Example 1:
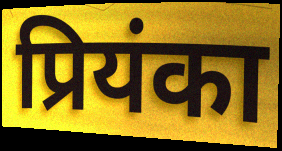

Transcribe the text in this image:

प्रियंका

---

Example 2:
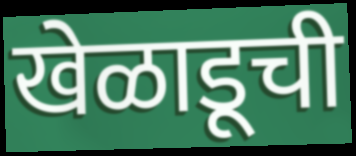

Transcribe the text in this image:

खेळाडूची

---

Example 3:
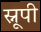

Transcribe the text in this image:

स्नूपी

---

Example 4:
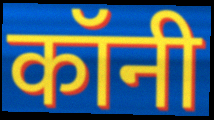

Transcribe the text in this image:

कॉनी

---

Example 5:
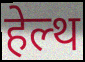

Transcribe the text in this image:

हेल्थ